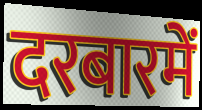
दरबारमें